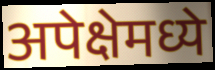
अपेक्षेमध्ये